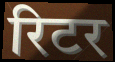
रिटर